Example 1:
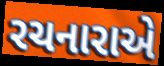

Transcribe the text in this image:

રચનારાએ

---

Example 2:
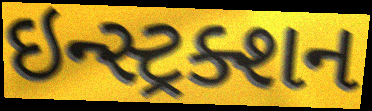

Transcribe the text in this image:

ઇન્સ્ટ્રક્શન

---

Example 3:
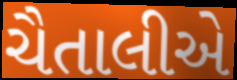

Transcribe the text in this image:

ચૈતાલીએ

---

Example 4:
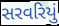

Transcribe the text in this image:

સરવરિયું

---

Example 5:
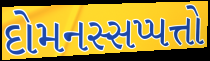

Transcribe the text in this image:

દોમનસ્સપ્પત્તો